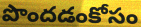
పొందడంకోసం